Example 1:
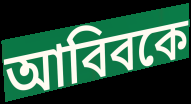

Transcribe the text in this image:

আবিবকে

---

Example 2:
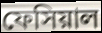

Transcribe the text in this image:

ফেসিয়াল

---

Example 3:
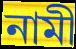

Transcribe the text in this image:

নামী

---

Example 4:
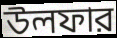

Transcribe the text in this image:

উলফার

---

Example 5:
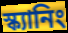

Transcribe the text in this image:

স্ক্যানিং